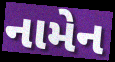
નામેન